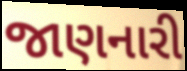
જાણનારી